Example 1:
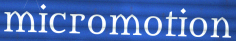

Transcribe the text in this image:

micromotion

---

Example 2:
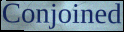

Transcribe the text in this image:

Conjoined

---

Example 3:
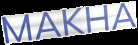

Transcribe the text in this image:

MAKHA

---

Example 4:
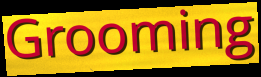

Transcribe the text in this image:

Grooming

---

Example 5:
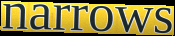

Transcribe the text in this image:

narrows